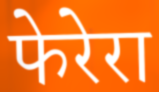
फेरेरा